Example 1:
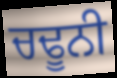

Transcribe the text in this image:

ਚਢੂਨੀ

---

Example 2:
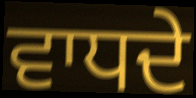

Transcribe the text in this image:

ਵਾਧਦੇ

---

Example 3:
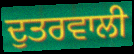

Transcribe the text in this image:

ਦੁਤਰਵਾਲੀ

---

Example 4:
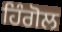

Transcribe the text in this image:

ਹਿੰਗੋਲ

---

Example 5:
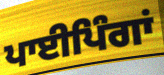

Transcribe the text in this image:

ਪਾਈਪਿੰਗਾਂ